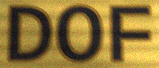
DOF